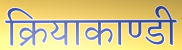
क्रियाकाण्डी